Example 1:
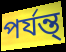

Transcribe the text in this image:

পর্যন্ত্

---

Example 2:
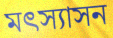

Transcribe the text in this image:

মৎস্যাসন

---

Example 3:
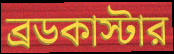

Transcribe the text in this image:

ব্রডকাস্টার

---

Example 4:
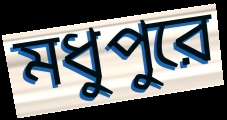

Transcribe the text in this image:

মধুপুরে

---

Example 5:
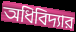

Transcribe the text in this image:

অধিবিদ্যার